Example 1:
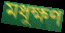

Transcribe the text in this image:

মধুক্ষণ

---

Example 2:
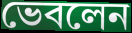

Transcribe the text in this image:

ভেবলেন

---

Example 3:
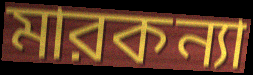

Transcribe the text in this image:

মারকন্যা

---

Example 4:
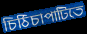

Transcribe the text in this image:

চিঠিচাপাটিতে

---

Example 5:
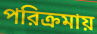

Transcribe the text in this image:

পরিক্রমায়